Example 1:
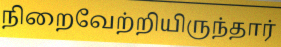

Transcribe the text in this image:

நிறைவேற்றியிருந்தார்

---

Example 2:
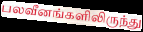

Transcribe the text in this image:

பலவீனங்களிலிருந்து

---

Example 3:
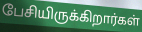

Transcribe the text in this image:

பேசியிருக்கிறார்கள்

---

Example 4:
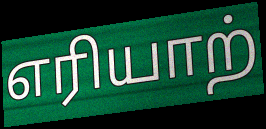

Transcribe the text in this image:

எரியாற்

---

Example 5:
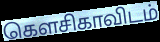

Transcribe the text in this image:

கௌசிகாவிடம்